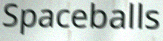
Spaceballs